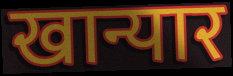
खान्यार